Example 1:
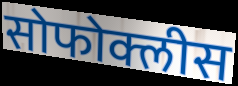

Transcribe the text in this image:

सोफोक्लीस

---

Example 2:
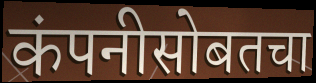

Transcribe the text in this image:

कंपनीसोबतचा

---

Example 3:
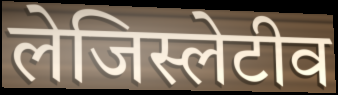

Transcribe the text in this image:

लेजिस्लेटीव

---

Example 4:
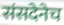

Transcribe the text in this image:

संसदेनेच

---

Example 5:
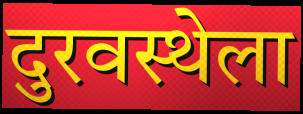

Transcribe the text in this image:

दुरवस्थेला